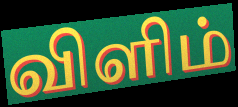
விளிம்